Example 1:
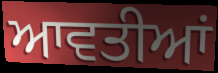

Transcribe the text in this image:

ਆਵਤੀਆਂ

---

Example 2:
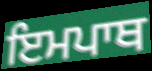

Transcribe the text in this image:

ਇਮਪਾਥ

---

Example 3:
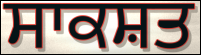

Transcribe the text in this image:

ਸਾਕਸ਼ਤ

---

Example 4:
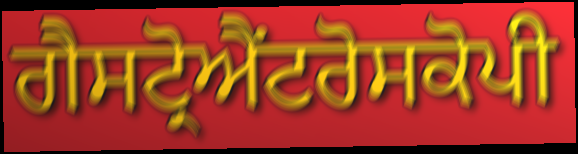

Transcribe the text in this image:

ਗੈਸਟ੍ਰੋਐਂਟਰੋਸਕੋਪੀ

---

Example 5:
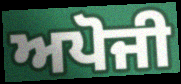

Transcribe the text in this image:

ਅਪੋਜੀ